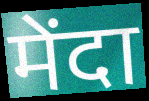
मेंदा